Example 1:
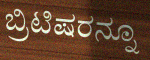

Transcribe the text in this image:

ಬ್ರಿಟಿಷರನ್ನೂ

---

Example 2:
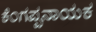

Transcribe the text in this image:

ಕೆಂಗಪ್ಪನಾಯಕ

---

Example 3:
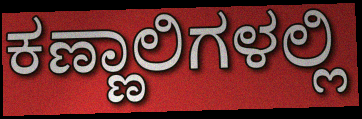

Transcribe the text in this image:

ಕಣ್ಣಾಲಿಗಳಲ್ಲಿ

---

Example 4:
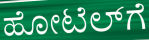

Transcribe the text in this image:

ಹೋಟೆಲ್‌ಗೆ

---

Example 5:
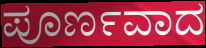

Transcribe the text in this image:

ಪೂರ್ಣವಾದ